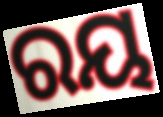
ରୟ